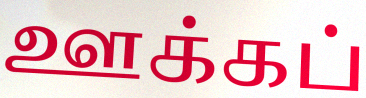
ஊக்கப்